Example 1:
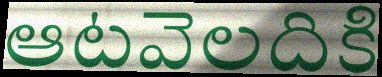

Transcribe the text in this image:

ఆటవెలదికి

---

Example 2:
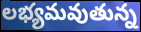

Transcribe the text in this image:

లభ్యమవుతున్న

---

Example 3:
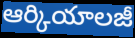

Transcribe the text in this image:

ఆర్కియాలజీ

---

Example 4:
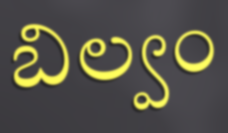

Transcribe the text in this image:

బిల్వం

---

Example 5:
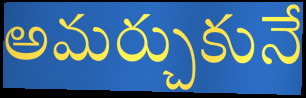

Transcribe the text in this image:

అమర్చుకునే